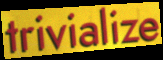
trivialize